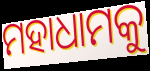
ମହାଧାମକୁ